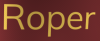
Roper